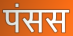
पंसस